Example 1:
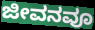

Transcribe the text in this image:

ಜೀವನವೂ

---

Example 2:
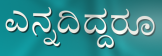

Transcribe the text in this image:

ಎನ್ನದಿದ್ದರೂ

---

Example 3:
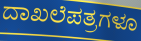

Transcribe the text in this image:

ದಾಖಲೆಪತ್ರಗಳೂ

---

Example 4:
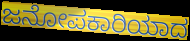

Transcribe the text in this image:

ಜನೋಪಕಾರಿಯಾದ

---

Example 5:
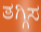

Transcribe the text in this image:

ತಗ್ಗಿಸ